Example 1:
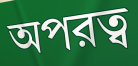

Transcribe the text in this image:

অপরত্ব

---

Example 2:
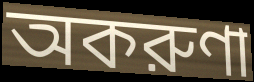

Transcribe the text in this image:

অকরুণা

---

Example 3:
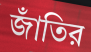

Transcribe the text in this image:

জাঁতির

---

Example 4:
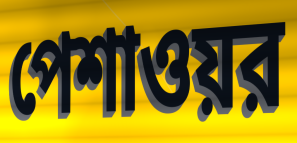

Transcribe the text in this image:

পেশাওয়র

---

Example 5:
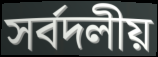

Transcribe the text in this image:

সর্বদলীয়